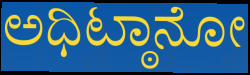
ಅಧಿಟ್ಠಾನೋ